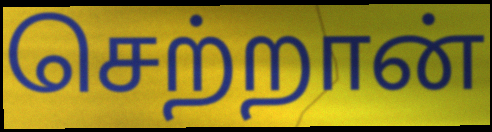
செற்றான்